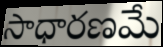
సాధారణమే